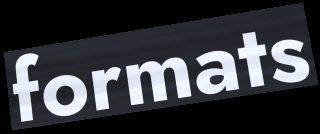
formats